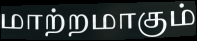
மாற்றமாகும்